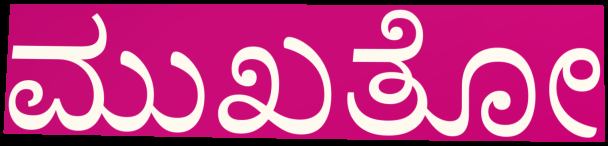
ಮುಖತೋ